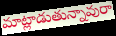
మాట్లాడుతున్నావురా